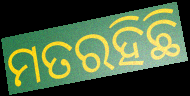
ମତରହିଛି